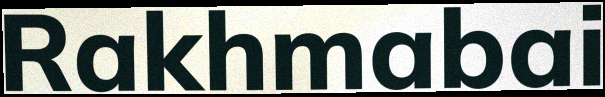
Rakhmabai